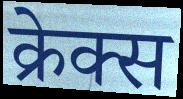
क्रेक्स